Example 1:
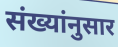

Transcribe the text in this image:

संख्यांनुसार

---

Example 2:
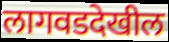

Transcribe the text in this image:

लागवडदेखील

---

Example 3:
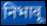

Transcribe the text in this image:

निभावू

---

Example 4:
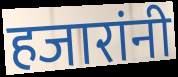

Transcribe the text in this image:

हजारांनी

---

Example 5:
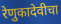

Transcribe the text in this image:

रेणुकादेवीचा